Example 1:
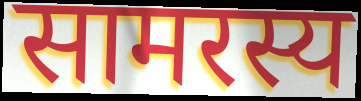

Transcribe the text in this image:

सामरस्य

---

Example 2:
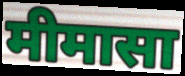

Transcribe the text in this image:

मीमासा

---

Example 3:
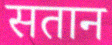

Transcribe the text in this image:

सतान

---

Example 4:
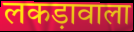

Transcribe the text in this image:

लकड़ावाला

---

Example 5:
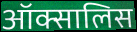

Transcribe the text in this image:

ऑक्सालिस